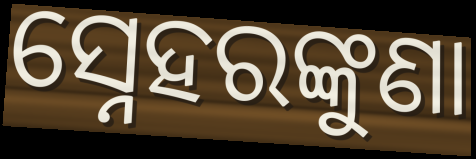
ସ୍ନେହରଙ୍କୁଣା